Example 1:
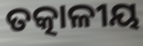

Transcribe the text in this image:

ତତ୍କାଳୀୟ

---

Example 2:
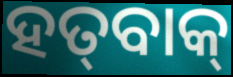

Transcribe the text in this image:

ହତ୍‌ବାକ୍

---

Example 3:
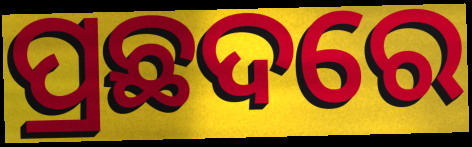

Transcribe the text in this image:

ପ୍ରଛଦରେ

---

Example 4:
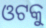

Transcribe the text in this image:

ଓଟକୁ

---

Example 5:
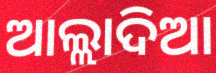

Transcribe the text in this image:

ଆଲ୍ଲାଦିଆ